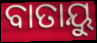
ବାତାୟୁ